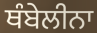
ਥੰਬੇਲੀਨਾ